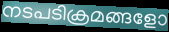
നടപടിക്രമങ്ങളോ